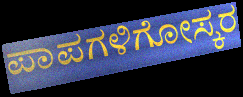
ಪಾಪಗಳಿಗೋಸ್ಕರ